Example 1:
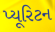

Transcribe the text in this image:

પ્યૂરિટન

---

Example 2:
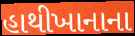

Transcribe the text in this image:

હાથીખાનાના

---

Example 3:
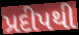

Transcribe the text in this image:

પ્રદીપથી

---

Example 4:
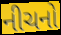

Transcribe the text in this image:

નીચનો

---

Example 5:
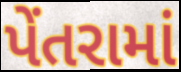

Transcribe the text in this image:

પેંતરામાં